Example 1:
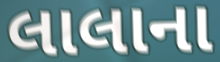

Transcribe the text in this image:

લાલાના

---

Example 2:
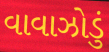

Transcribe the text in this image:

વાવાઝોડું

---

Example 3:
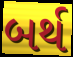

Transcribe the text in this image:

બર્થ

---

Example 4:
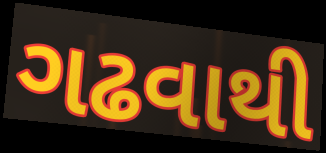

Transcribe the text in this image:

ગઢવાથી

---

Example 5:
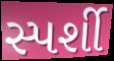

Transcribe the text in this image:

સ્પર્શી